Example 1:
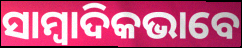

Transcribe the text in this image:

ସାମ୍ୱାଦିକଭାବେ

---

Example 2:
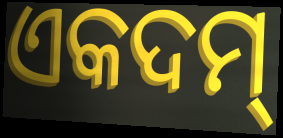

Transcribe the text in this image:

ଏକଦମ୍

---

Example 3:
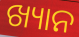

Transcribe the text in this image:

ଖ୍ୟାନ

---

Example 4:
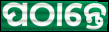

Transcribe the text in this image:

ପଠାନ୍ତେ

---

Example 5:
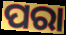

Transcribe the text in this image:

ପରା